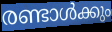
രണ്ടാൾക്കും